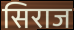
सिराज